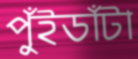
পুঁইডাঁটা